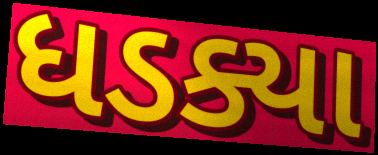
ધડક્યા